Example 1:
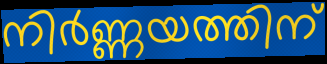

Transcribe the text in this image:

നിർണ്ണയത്തിന്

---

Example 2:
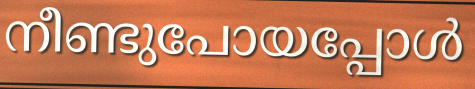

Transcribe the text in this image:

നീണ്ടുപോയപ്പോൾ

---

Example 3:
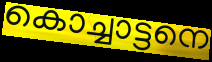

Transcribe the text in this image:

കൊച്ചാട്ടനെ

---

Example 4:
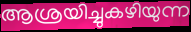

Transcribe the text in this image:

ആശ്രയിച്ചുകഴിയുന്ന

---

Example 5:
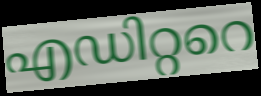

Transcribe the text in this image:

എഡിറ്ററെ